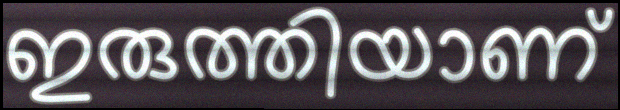
ഇരുത്തിയാണ്